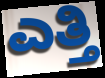
ಎತ್ತಿ